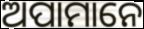
ଅପାମାନେ